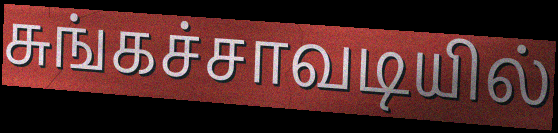
சுங்கச்சாவடியில்